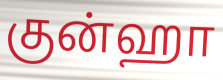
குன்ஹா